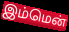
இம்மென்